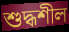
শুদ্ধশীল